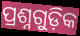
ପ୍ରଶ୍ନଗୁଡ଼ିକ